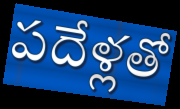
పదేళ్లతో